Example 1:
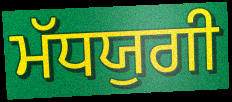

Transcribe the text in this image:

ਮੱਧਯੁਗੀ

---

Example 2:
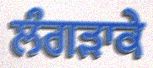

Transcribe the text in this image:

ਲੰਗੜਾਕੇ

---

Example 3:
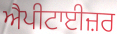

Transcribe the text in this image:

ਐਪੀਟਾਈਜ਼ਰ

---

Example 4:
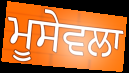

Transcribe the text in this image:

ਮੂਸੇਵਲਾ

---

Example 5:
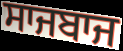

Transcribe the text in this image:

ਸਾਜਬਾਜ